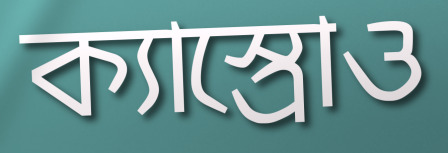
ক্যাস্ত্রোও